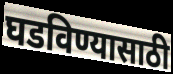
घडविण्यासाठी